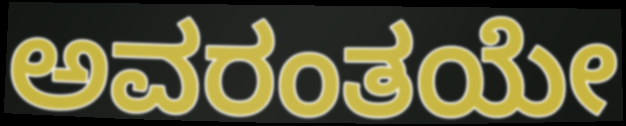
ಅವರಂತಯೇ